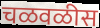
चळवळीस